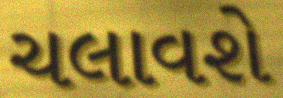
ચલાવશે